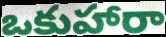
ఒకుహారా